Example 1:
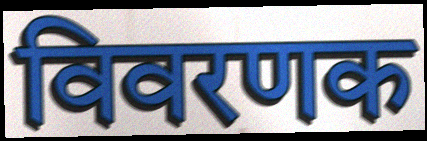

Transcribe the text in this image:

विवरणक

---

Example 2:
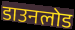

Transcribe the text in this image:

डाउनलोड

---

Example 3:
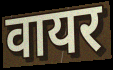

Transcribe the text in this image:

वायर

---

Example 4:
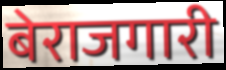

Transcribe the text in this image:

बेराजगारी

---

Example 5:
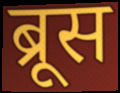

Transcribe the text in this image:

ब्रूस